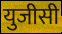
युजीसी